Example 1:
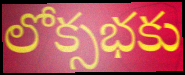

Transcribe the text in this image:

లోక్సభకు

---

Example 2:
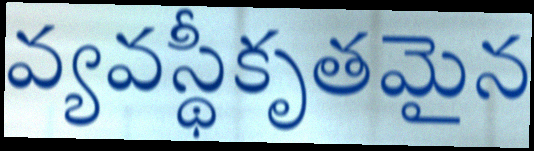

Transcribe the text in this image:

వ్యవస్థీకృతమైన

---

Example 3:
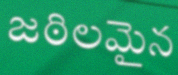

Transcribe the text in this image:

జఠిలమైన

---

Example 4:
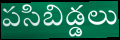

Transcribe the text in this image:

పసిబిడ్డలు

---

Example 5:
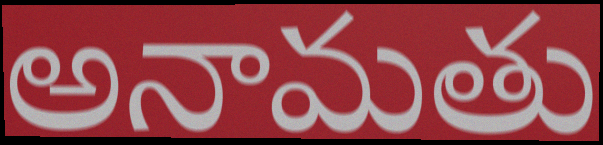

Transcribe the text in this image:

అనామతు